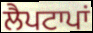
ਲੈਪਟਾਪਾਂ